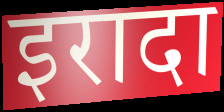
इरादा